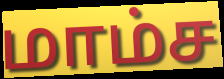
மாம்ச